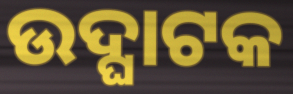
ଉଦ୍ଘାଟକ